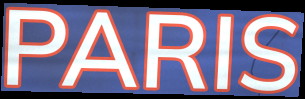
PARIS